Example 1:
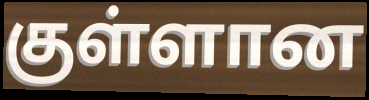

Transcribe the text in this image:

குள்ளான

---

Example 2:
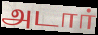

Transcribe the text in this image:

அடார்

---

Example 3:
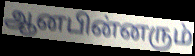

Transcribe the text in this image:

ஆனபின்னரும்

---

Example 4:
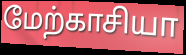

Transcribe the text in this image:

மேற்காசியா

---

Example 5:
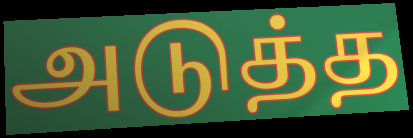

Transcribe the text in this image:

அடுத்த